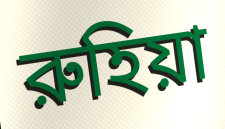
রুহিয়া